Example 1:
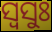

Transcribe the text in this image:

ସ୍ଵସୁଃ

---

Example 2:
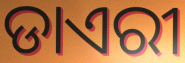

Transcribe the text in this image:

ଡାଏରୀ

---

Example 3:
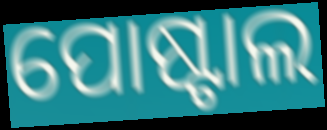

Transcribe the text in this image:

ପୋଷ୍ଟାଲ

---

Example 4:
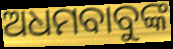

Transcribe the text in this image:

ଅଧମବାବୁଙ୍କ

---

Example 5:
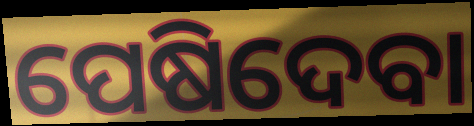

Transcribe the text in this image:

ପେଷିଦେବା